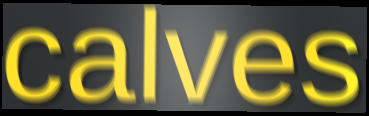
calves